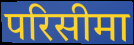
परिसीमा